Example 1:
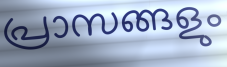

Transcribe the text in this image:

പ്രാസങ്ങളും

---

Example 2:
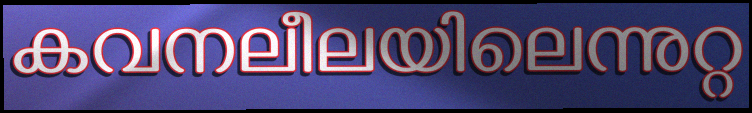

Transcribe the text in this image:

കവനലീലയിലെന്നുറ്റ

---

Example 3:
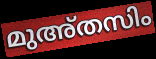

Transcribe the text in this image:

മുഅ്തസിം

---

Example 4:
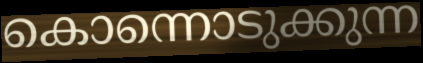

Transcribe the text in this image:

കൊന്നൊടുക്കുന്ന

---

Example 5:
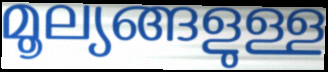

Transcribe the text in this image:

മൂല്യങ്ങളുള്ള